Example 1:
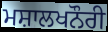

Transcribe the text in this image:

ਮਸ਼ਾਲਖਨੌਰੀ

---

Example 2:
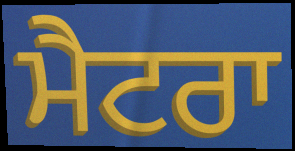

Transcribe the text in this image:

ਮੈਟਰਾ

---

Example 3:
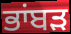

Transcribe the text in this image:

ਭਾਂਬੜ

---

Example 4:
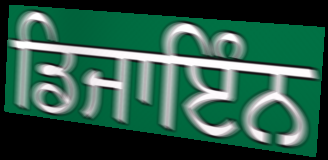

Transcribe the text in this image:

ਡਿਜਾਇੰਨ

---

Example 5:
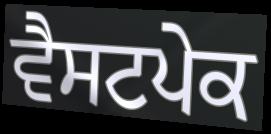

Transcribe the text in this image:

ਵੈਸਟਪੇਕ